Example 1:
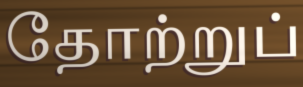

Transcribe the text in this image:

தோற்றுப்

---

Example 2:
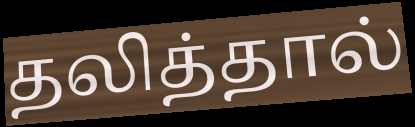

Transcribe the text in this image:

தலித்தால்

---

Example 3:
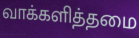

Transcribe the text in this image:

வாக்களித்தமை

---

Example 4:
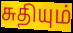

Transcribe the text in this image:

சுதியும்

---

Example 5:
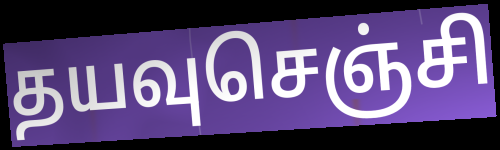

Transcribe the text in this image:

தயவுசெஞ்சி